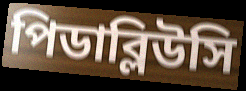
পিডাব্লিউসি